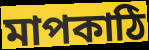
মাপকাঠি